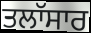
ਤਲਾੱਸਾਰ